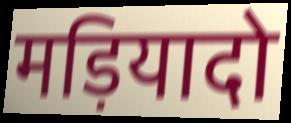
मड़ियादो